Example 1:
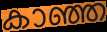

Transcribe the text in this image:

കാഞ്ഞ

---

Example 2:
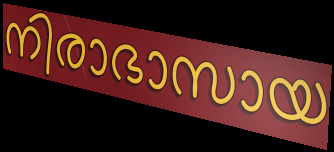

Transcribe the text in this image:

നിരാഭാസായ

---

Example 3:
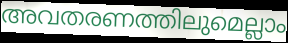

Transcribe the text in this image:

അവതരണത്തിലുമെല്ലാം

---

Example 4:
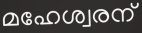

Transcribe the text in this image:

മഹേശ്വരന്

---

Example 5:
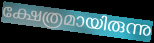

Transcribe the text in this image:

ക്ഷേത്രമായിരുന്നു